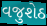
વજુશેઠ